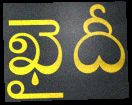
ఖైదీ